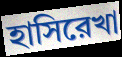
হাসিরেখা